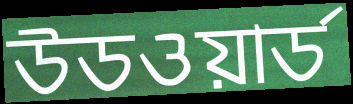
উডওয়ার্ড